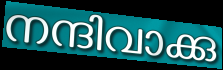
നന്ദിവാക്കു